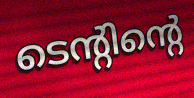
ടെന്റിന്റെ